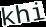
khi